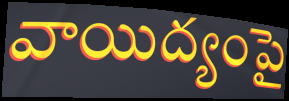
వాయిద్యంపై